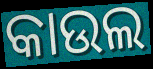
କାଉଲ